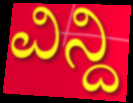
ವಿನ್ದಿ